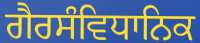
ਗੈਰਸੰਵਿਧਾਨਿਕ